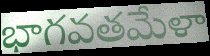
భాగవతమేళా